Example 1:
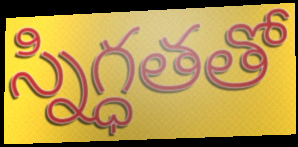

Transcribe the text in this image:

స్నిగ్ధతతో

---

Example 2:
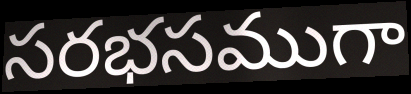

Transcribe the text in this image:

సరభసముగా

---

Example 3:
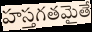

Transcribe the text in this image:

హస్తగతమైతే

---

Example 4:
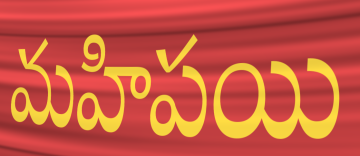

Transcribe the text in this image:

మహిపయి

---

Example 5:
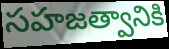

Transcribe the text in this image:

సహజత్వానికి